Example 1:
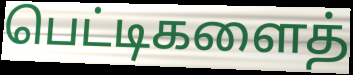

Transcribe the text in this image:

பெட்டிகளைத்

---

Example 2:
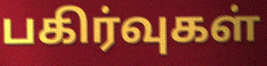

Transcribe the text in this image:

பகிர்வுகள்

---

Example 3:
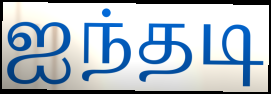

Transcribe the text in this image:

ஐந்தடி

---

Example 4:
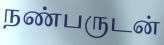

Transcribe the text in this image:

நண்பருடன்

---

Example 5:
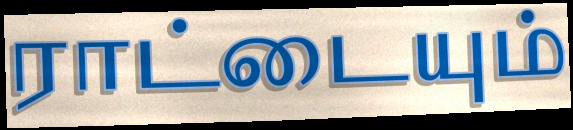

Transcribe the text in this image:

ராட்டையும்